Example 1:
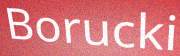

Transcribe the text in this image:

Borucki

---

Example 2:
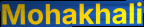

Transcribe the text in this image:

Mohakhali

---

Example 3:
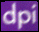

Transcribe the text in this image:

dpi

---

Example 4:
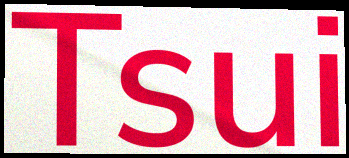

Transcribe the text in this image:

Tsui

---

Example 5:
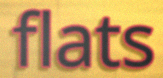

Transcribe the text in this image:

flats